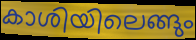
കാശിയിലെങ്ങും